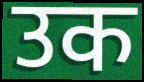
उक